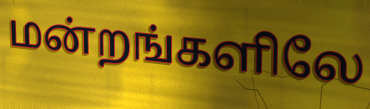
மன்றங்களிலே